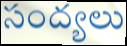
సంద్యలు